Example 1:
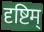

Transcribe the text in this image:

दृष्टिम्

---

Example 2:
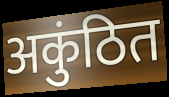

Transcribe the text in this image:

अकुंठित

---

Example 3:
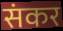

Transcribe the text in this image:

संकर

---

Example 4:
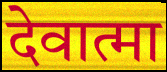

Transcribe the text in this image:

देवात्मा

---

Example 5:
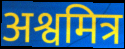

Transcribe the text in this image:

अश्वमित्र